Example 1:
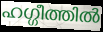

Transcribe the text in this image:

ഹഗ്ഗീത്തിൽ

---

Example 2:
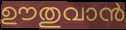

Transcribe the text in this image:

ഊതുവാൻ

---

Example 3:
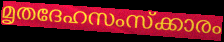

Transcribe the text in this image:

മൃതദേഹസംസ്‌ക്കാരം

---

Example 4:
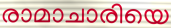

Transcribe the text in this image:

രാമാചാരിയെ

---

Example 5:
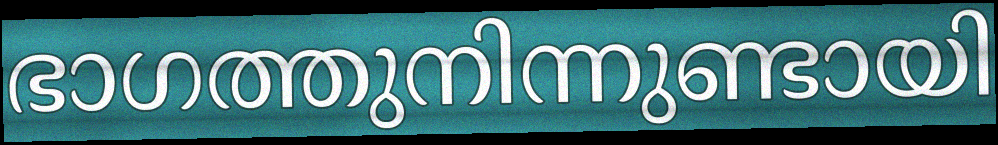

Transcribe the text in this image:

ഭാഗത്തുനിന്നുണ്ടായി